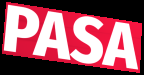
PASA